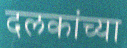
दलकांच्या